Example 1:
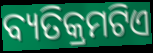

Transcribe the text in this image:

ବ୍ୟତିକ୍ରମଟିଏ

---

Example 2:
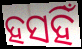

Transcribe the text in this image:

ହସହିଁ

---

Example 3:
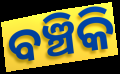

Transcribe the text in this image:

ବଞ୍ଚିକି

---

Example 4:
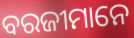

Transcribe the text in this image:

ବରଜୀମାନେ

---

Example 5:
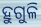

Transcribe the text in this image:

ହୁଗୁଳି